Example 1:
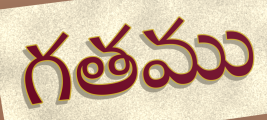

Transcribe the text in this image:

గతము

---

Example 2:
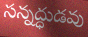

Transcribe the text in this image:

సన్నద్ధుడవు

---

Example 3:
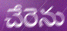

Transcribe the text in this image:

చేరెను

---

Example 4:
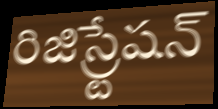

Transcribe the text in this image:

రిజిస్ర్టేషన్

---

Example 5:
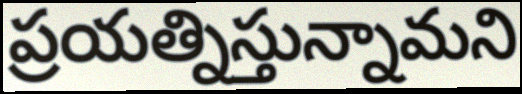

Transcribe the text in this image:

ప్రయత్నిస్తున్నామని